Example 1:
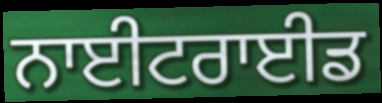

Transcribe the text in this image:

ਨਾਈਟਰਾਈਡ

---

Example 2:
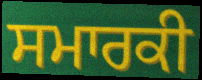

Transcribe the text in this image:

ਸਮਾਰਕੀ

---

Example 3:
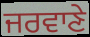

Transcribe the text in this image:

ਜਰਵਾਣੇ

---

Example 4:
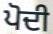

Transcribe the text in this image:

ਪੋਦੀ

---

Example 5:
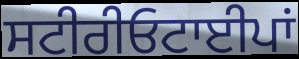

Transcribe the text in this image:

ਸਟੀਰੀਓਟਾਈਪਾਂ